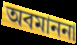
অবমাননা